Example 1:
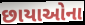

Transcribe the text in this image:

છાયાઓના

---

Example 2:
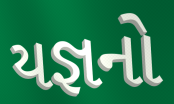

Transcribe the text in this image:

યજ્ઞનો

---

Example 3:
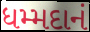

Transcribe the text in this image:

ધમ્મદાનં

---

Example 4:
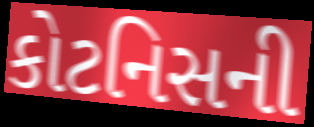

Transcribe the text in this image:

કોટનિસની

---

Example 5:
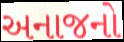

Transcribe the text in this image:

અનાજનો